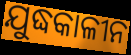
ଯୁଦ୍ଧକାଳୀନ